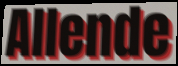
Allende